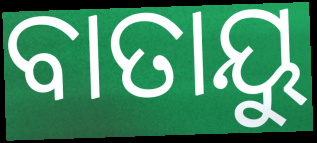
ବାତାୟୁ